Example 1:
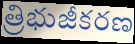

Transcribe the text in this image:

త్రిభుజీకరణ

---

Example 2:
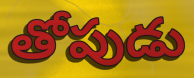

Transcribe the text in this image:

తోపుడు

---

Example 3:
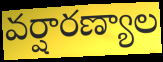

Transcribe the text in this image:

వర్షారణ్యాల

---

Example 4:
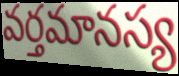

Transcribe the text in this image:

వర్తమానస్య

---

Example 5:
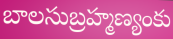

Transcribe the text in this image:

బాలసుబ్రహ్మణ్యంకు